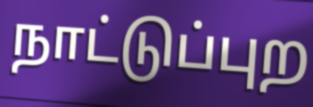
நாட்டுப்புற